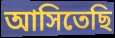
আসিতেছি